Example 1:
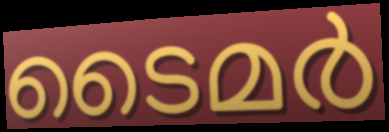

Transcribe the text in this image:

ടൈമർ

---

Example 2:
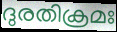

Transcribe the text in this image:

ദുരതിക്രമഃ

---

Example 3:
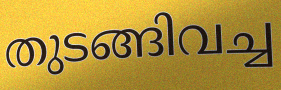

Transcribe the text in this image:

തുടങ്ങിവച്ച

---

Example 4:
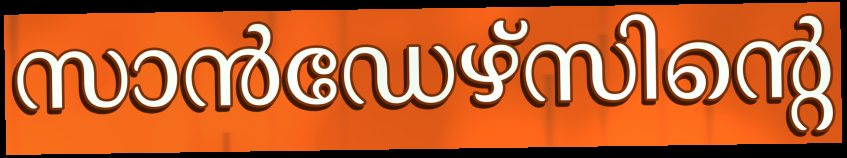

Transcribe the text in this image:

സാൻഡേഴ്സിന്റെ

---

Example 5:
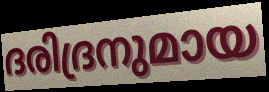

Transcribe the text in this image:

ദരിദ്രനുമായ